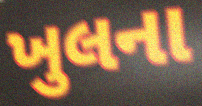
ખુલના